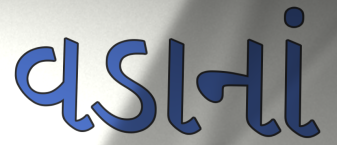
વડાનાં